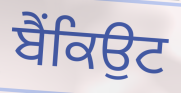
ਬੈਂਕਿਉਟ